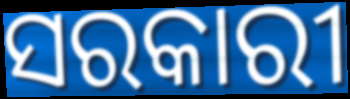
ସରକାରୀ